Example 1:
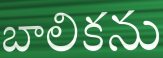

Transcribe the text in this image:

బాలికను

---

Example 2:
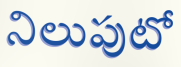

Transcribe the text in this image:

నిలుపుటో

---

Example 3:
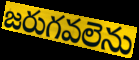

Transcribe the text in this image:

జరుగవలెను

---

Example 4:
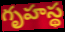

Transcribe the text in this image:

గృహస్థ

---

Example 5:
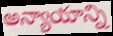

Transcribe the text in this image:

అన్యాయాన్ని